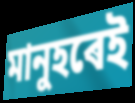
মানুহৰেই